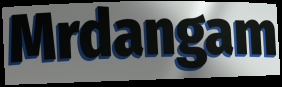
Mrdangam